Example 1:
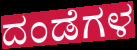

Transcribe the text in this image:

ದಂಡೆಗಳ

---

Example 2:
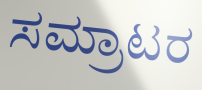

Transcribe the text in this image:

ಸಮ್ರಾಟರ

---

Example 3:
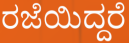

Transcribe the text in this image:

ರಜೆಯಿದ್ದರೆ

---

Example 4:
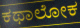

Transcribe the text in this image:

ಕಥಾಲೋಕ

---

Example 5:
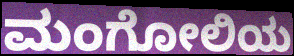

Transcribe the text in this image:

ಮಂಗೋಲಿಯ